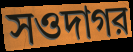
সওদাগর